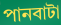
পানবাটা